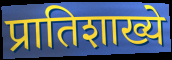
प्रातिशाख्ये